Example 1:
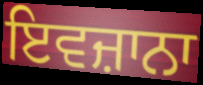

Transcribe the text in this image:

ਇਵਜ਼ਾਨਾ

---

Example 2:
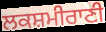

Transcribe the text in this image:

ਲਕਸ਼ਮੀਰਾਣੀ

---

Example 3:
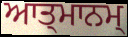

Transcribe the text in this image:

ਆਤ੍ਮਾਨਮ੍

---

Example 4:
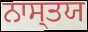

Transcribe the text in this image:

ਨਾਸ੍ਤਯ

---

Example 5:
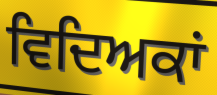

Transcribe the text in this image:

ਵਿਦਿਅਕਾਂ